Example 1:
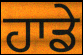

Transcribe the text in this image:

ਹਾਡੇ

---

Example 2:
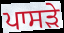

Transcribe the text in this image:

ਪਾਸੜੇ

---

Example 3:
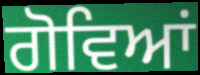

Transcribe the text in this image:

ਗੋਵਿਆਂ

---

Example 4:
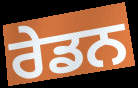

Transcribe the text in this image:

ਰੇਡਨ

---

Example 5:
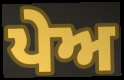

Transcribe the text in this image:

ਪੇਅ